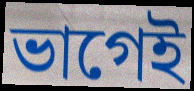
ভাগেই